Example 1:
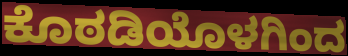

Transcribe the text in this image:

ಕೊಠಡಿಯೊಳಗಿಂದ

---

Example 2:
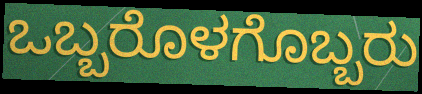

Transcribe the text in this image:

ಒಬ್ಬರೊಳಗೊಬ್ಬರು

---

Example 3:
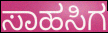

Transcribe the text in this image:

ಸಾಹಸಿಗ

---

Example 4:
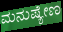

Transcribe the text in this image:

ಮನುಷ್ಯೇಣ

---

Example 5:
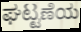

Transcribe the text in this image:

ಘಟ್ಟಣೆಯ